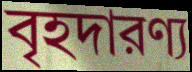
বৃহদারণ্য